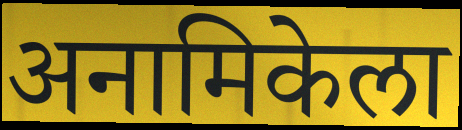
अनामिकेला